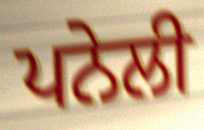
ਪਨੇਲੀ